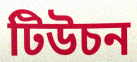
টিউচন